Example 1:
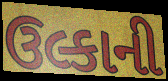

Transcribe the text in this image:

ઉલ્કાની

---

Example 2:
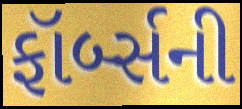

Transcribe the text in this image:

ફૉર્બ્સની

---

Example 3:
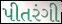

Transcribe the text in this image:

પીતરંગી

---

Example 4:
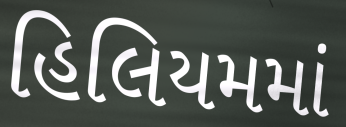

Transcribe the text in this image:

હિલિયમમાં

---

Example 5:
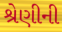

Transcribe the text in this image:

શ્રેણીની